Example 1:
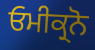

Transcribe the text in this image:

ਓਮੀਕ੍ਰਨੋ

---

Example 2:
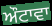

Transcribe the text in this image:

ਔਟਾਵਾ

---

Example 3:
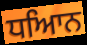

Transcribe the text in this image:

ਧਆਿਨ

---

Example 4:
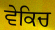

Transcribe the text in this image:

ਵੇਕਿਚ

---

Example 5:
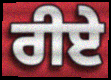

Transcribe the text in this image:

ਰੀਏ